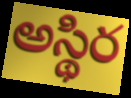
అస్థిర